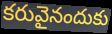
కరువైనందుకు